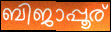
ബിജാപ്പൂര്